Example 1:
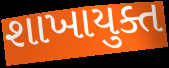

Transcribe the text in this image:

શાખાયુક્ત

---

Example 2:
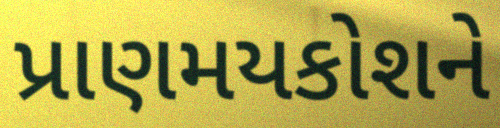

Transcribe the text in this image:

પ્રાણમયકોશને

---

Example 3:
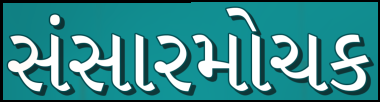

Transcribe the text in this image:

સંસારમોચક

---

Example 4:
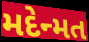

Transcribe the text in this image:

મદેન્મત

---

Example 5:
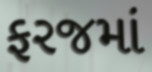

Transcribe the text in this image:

ફરજમાં